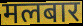
मलबार